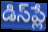
డిస్‌ప్లే